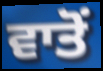
ਵਾਤੋਂ